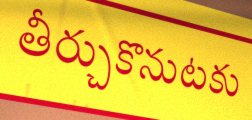
తీర్చుకొనుటకు